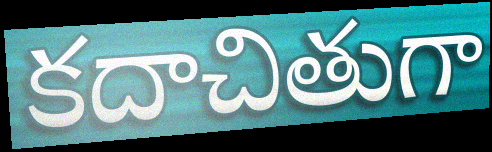
కదాచితుగా